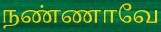
நண்ணாவே